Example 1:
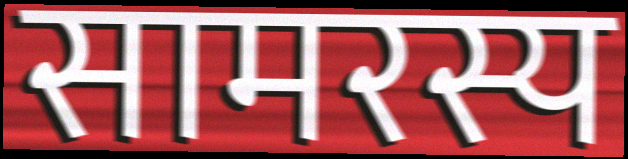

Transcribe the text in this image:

सामरस्य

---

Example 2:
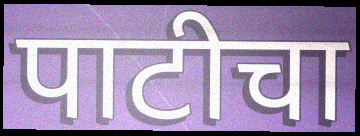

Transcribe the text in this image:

पाटीचा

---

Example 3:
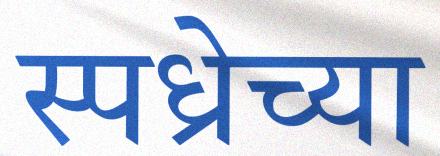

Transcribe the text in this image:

स्पध्रेच्या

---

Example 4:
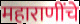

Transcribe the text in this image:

महाराणींचे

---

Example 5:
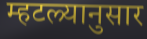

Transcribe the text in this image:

म्हटल्यानुसार